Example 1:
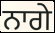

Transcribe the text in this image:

ਨਾਗੇ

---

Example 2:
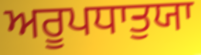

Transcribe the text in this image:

ਅਰੂਪਧਾਤੁਯਾ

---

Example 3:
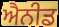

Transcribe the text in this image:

ਐਨੀਡ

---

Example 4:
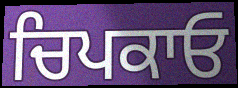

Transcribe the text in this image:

ਚਿਪਕਾਓ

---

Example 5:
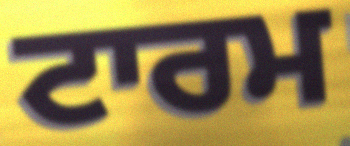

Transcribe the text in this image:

ਟਾਰਮ